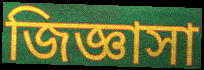
জিজ্ঞাসা